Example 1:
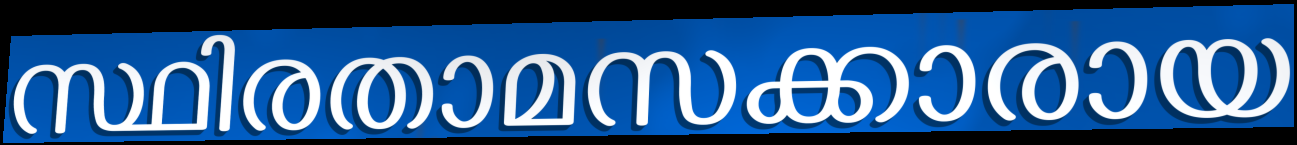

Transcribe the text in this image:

സ്ഥിരതാമസക്കാരായ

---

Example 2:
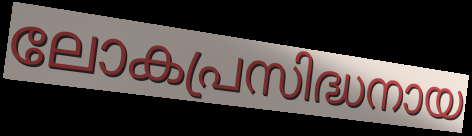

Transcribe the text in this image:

ലോകപ്രസിദ്ധനായ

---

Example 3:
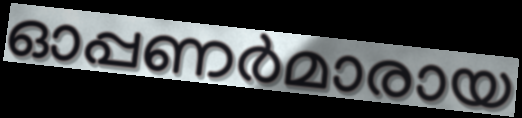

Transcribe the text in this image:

ഓപ്പണർമാരായ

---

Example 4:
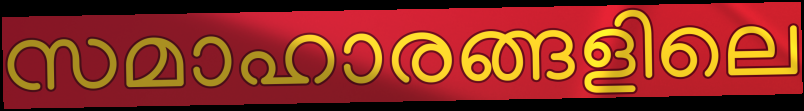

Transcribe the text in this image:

സമാഹാരങ്ങളിലെ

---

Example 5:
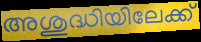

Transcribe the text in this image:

അശുദ്ധിയിലേക്ക്